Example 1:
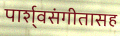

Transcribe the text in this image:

पार्श्वसंगीतासह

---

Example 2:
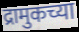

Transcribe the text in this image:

द्रामुकच्या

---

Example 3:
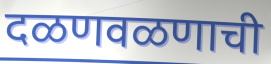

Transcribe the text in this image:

दळणवळणाची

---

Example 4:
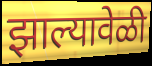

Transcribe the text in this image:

झाल्यावेळी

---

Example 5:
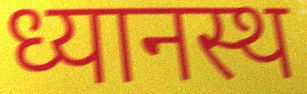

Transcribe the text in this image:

ध्यानस्थ